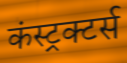
कंस्ट्रक्टर्स